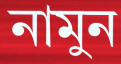
নামুন